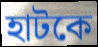
হাটকে